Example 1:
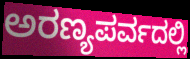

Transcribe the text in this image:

ಅರಣ್ಯಪರ್ವದಲ್ಲಿ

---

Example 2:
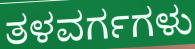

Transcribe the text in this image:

ತಳವರ್ಗಗಳು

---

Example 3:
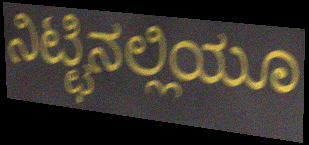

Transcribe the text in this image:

ನಿಟ್ಟಿನಲ್ಲಿಯೂ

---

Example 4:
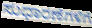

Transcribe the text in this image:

ಸುಧಾರಣೆಗಳಿಗೆ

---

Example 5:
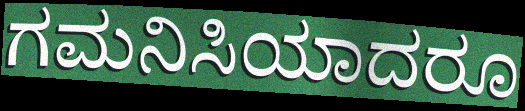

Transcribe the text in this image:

ಗಮನಿಸಿಯಾದರೂ